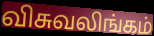
விசுவலிங்கம்